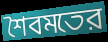
শৈবমতের